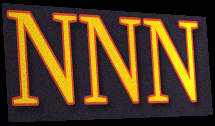
NNN